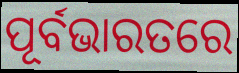
ପୂର୍ବଭାରତରେ